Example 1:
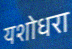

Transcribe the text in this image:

यशोधरा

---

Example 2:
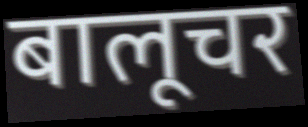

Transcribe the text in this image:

बालूचर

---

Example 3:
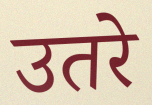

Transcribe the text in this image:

उतरे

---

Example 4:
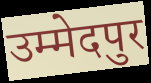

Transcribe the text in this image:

उम्मेदपुर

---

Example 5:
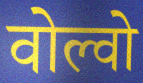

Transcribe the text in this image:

वोल्वो